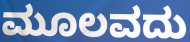
ಮೂಲವದು